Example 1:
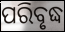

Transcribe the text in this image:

ପରିବୃଦ୍ଧ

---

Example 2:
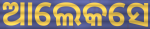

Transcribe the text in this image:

ଆଲେକସେ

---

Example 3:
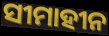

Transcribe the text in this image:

ସୀମାହୀନ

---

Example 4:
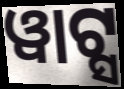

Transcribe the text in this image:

ୱାଟ୍ସ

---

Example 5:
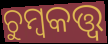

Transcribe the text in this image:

ଚୁମ୍ବକତ୍ତ୍ୱ